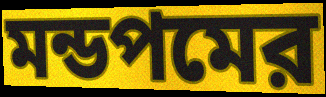
মন্ডপমের